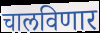
चालविणार